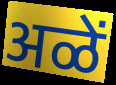
अळें